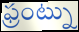
ఫ్రంట్ను